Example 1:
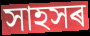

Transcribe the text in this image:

সাহসৰ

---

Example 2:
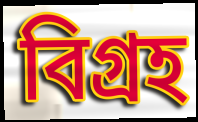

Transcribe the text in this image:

বিগ্ৰহ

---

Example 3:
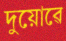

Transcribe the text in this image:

দুয়োৱে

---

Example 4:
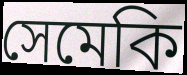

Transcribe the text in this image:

সেমেকি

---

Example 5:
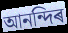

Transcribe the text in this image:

আনন্দিৰ